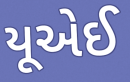
યૂએઈ